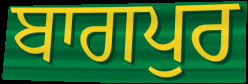
ਬਾਗਪੁਰ